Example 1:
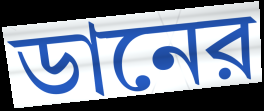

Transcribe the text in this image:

ডানের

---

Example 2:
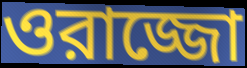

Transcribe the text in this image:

ওরাজ্জো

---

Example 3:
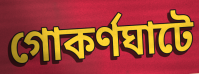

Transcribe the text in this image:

গোকর্ণঘাটে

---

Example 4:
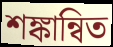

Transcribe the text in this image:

শঙ্কান্বিত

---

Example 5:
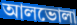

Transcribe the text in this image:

আলভোলা